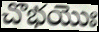
చొభయొః